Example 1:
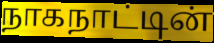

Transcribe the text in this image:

நாகநாட்டின்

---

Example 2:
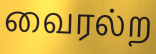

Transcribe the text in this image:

வைரல்ற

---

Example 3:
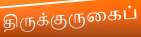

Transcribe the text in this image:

திருக்குருகைப்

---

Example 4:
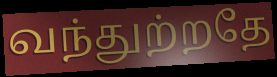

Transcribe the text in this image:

வந்துற்றதே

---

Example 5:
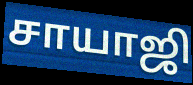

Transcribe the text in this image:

சாயாஜி